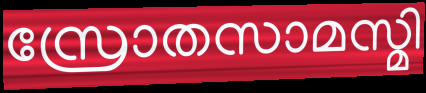
സ്രോതസാമസ്മി